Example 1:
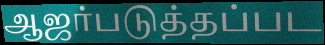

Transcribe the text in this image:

ஆஜர்படுத்தப்பட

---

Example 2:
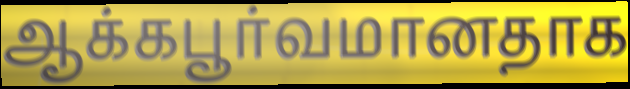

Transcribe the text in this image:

ஆக்கபூர்வமானதாக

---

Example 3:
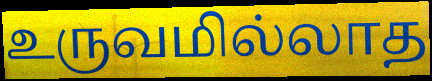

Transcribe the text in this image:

உருவமில்லாத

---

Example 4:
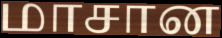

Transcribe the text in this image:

மாசான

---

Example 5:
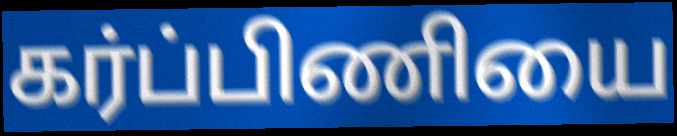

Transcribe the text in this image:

கர்ப்பிணியை